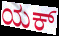
ಯಕ್